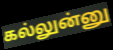
கல்லுன்னு